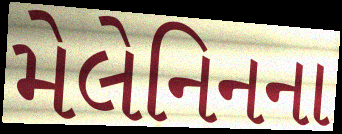
મેલેનિનના